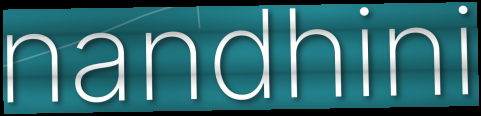
nandhini